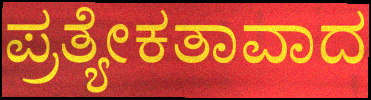
ಪ್ರತ್ಯೇಕತಾವಾದ